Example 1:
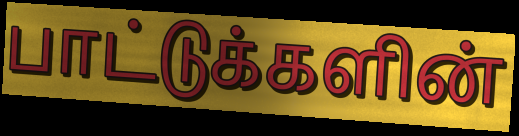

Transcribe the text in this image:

பாட்டுக்களின்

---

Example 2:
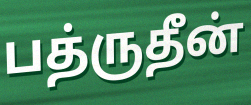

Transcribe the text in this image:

பத்ருதீன்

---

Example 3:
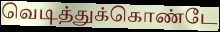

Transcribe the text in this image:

வெடித்துக்கொண்டே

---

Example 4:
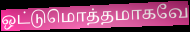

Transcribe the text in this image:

ஒட்டுமொத்தமாகவே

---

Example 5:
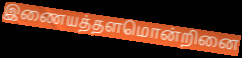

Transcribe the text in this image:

இணையத்தளமொன்றினை